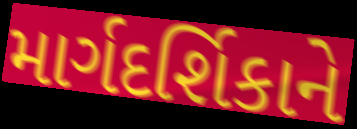
માર્ગદર્શિકાને